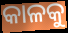
କାଳକୁ